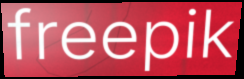
freepik